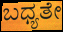
ಬಧ್ಯತೇ